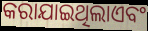
କରାଯାଇଥିଲାଏବଂ